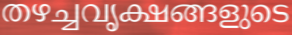
തഴച്ചവൃക്ഷങ്ങളുടെ